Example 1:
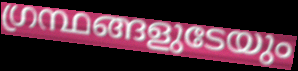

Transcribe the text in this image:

ഗ്രന്ഥങ്ങളുടേയും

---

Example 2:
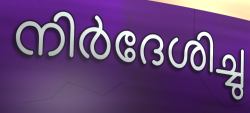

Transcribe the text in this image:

നിർദേശിച്ചു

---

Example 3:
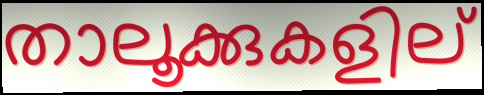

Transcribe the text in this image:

താലൂക്കുകളില്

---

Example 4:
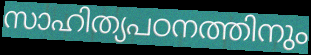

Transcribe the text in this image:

സാഹിത്യപഠനത്തിനും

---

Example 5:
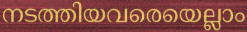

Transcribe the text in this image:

നടത്തിയവരെയെല്ലാം